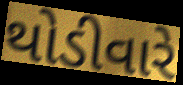
થોડીવારે